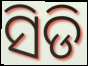
ସିଡି